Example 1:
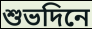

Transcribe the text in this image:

শুভদিনে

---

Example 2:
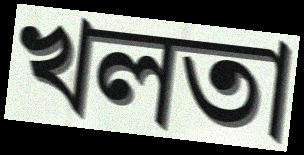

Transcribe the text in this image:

খলতা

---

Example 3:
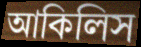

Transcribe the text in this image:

আকিলিস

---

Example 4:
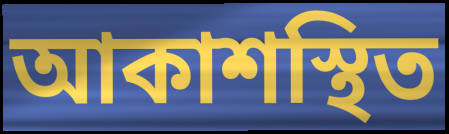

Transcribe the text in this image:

আকাশস্থিত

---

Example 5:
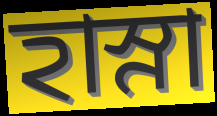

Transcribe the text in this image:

হাস্না